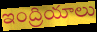
ఇంద్రియాలు